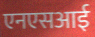
एनएसआई